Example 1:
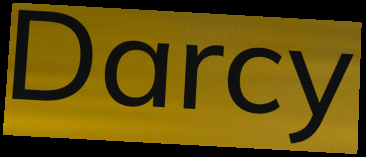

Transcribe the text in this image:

Darcy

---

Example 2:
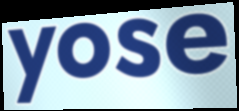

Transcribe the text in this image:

yose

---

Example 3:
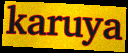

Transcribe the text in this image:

karuya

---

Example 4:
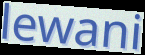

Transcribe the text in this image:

lewani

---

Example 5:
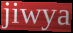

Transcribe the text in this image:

jiwya